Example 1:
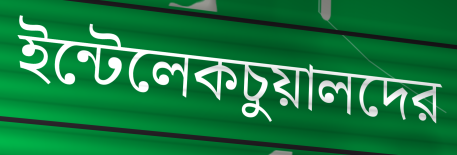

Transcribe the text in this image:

ইন্টেলেকচুয়ালদের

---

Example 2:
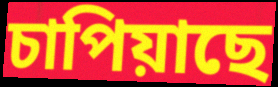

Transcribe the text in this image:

চাপিয়াছে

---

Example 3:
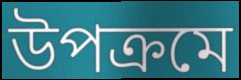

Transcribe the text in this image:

উপক্রমে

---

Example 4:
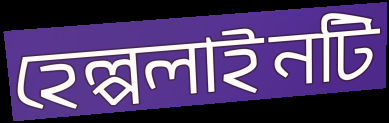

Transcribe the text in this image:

হেল্পলাইনটি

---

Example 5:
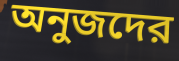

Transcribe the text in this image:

অনুজদের